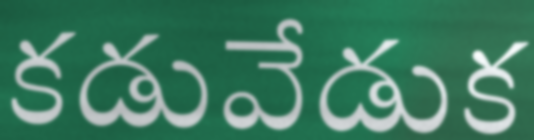
కడువేడుక